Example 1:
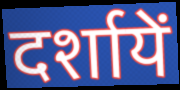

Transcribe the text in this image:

दर्शायें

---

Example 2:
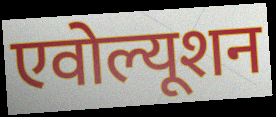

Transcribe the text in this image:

एवोल्यूशन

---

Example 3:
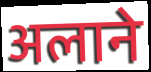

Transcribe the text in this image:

अलाने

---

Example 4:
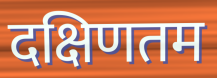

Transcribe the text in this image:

दक्षिणतम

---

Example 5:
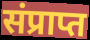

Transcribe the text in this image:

संप्राप्त